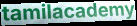
tamilacademy